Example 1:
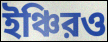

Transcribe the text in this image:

ইঞ্চিরও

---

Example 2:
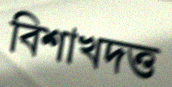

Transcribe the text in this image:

বিশাখদত্ত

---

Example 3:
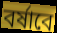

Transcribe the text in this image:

বর্ষাবে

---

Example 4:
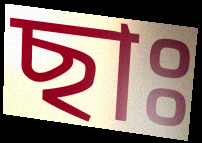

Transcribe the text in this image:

ছাঃ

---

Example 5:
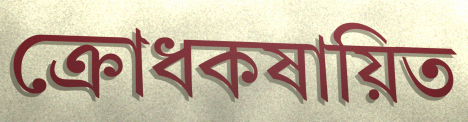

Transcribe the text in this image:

ক্রোধকষায়িত